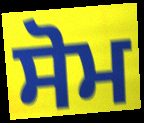
ਸੋਮ